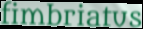
fimbriatus